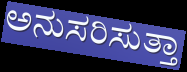
ಅನುಸರಿಸುತ್ತಾ